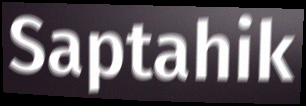
Saptahik